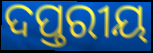
ଦପ୍ତରୀୟ